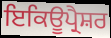
ਇਕਿਊਪ੍ਰੈਸ਼ਰ